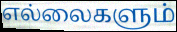
எல்லைகளும்